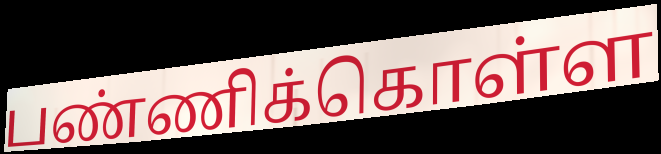
பண்ணிக்கொள்ள